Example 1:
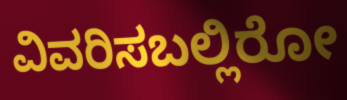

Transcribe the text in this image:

ವಿವರಿಸಬಲ್ಲಿರೋ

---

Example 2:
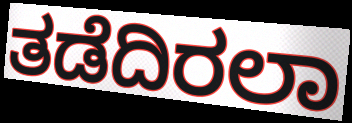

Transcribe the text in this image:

ತಡೆದಿರಲಾ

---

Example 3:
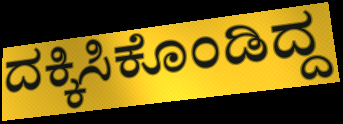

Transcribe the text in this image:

ದಕ್ಕಿಸಿಕೊಂಡಿದ್ದ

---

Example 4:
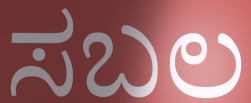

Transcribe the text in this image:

ಸಬಲ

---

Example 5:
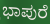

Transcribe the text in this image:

ಭಾಪುರೆ